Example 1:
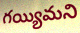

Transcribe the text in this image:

గయ్యిమని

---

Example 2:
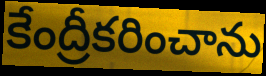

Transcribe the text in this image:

కేంద్రీకరించాను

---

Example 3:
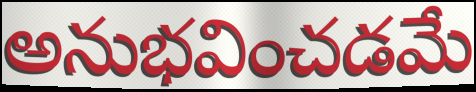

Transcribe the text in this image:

అనుభవించడమే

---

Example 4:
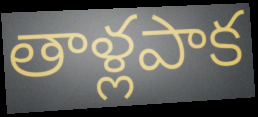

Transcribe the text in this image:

తాళ్లపాక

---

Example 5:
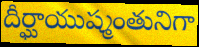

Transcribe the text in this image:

దీర్ఘాయుష్మంతునిగా